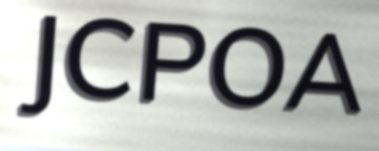
JCPOA